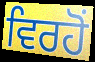
ਵਿਰਹੋਂ